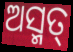
ଅସ୍ମତ୍